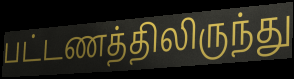
பட்டணத்திலிருந்து